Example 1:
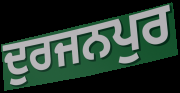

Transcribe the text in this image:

ਦੁਰਜਨਪੁਰ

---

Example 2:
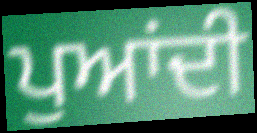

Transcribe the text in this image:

ਪੁਆਂਦੀ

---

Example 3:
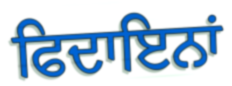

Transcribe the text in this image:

ਫਿਦਾਇਨਾਂ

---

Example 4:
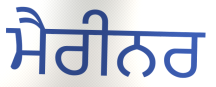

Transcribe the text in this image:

ਮੈਰੀਨਰ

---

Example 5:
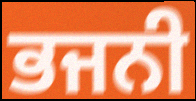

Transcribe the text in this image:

ਭਜਨੀ